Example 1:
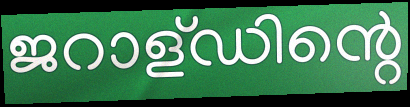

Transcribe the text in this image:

ജറാള്ഡിന്റെ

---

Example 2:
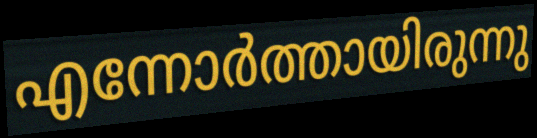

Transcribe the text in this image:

എന്നോർത്തായിരുന്നു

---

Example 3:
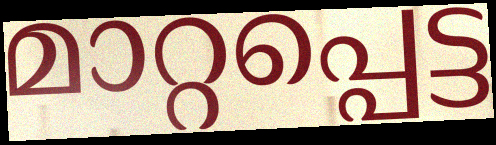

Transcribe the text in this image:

മാറ്റപ്പെട്ട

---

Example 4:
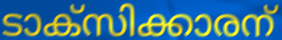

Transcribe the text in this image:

ടാക്സിക്കാരന്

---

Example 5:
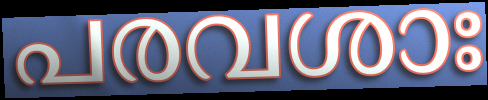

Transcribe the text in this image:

പരവശാഃ